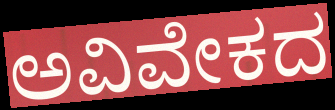
ಅವಿವೇಕದ